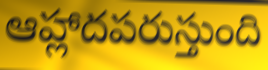
ఆహ్లాదపరుస్తుంది